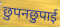
छुपनछुपाई